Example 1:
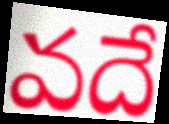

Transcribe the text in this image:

వదే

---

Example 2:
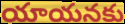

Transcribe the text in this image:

యాయనకు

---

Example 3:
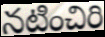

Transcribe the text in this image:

నటించిరి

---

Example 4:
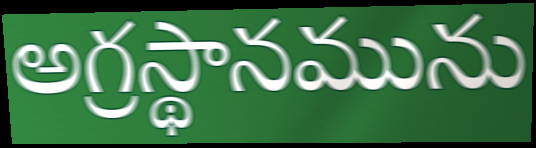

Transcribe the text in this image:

అగ్రస్థానమును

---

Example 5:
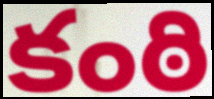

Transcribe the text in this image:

కంఠి